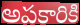
అపకారికి